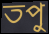
তপু